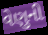
વેણુની